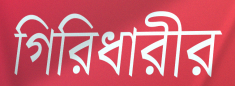
গিরিধারীর